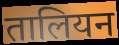
तालियन